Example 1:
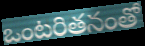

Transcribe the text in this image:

ఒంటరితనంతో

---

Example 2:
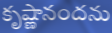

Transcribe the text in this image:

కృష్ణానందను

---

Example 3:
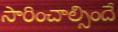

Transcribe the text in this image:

సారించాల్సిందే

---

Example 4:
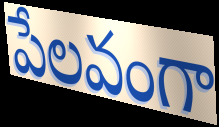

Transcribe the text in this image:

పేలవంగా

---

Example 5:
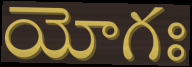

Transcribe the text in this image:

యోగః